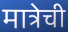
मात्रेची